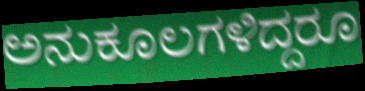
ಅನುಕೂಲಗಳಿದ್ದರೂ